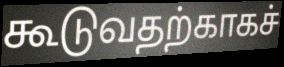
கூடுவதற்காகச்